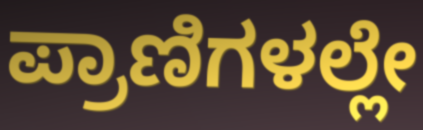
ಪ್ರಾಣಿಗಳಲ್ಲೇ